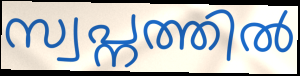
സ്വപ്നത്തിൽ